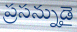
ప్రసన్నుడై